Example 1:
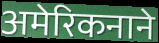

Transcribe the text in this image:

अमेरिकनाने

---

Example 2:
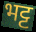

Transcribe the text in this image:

भट्ट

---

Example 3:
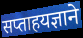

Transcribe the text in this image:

सप्ताहयज्ञाने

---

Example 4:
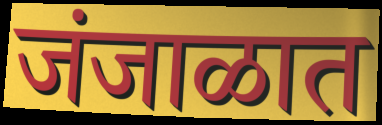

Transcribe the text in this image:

जंजाळात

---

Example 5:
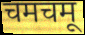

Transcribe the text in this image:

चमचमू